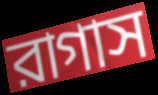
রাগাস